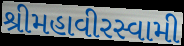
શ્રીમહાવીરસ્વામી